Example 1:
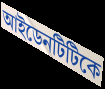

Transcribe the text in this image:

আইডেনটিটিকে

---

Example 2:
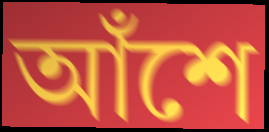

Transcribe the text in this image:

আঁশে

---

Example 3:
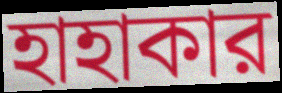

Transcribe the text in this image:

হাহাকার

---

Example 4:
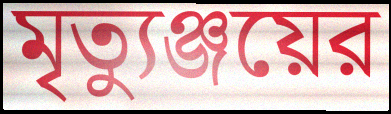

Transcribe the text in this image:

মৃত্যুঞ্জয়ের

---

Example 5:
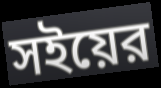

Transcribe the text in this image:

সইয়ের